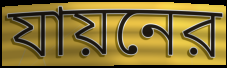
যায়নের